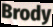
Brody